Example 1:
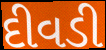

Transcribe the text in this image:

દીવડી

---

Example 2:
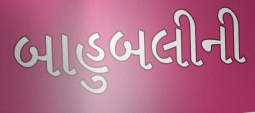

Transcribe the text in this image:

બાહુબલીની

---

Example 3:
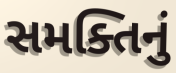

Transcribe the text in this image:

સમક્તિનું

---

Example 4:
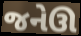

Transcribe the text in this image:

જનેઊ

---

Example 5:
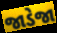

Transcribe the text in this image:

જાડેજા